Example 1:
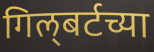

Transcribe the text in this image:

गिल्बर्टच्या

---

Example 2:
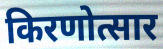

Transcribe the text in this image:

किरणोत्सार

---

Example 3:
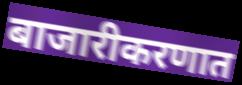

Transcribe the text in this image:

बाजारीकरणात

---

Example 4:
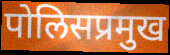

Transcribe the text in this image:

पोलिसप्रमुख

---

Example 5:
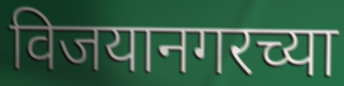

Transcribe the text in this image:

विजयानगरच्या